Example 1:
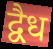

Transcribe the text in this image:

द्वैध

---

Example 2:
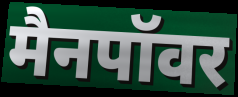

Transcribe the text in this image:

मैनपॉवर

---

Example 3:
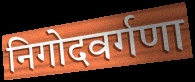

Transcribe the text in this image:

निगोदवर्गणा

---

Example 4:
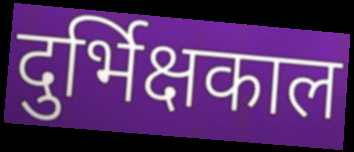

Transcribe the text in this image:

दुर्भिक्षकाल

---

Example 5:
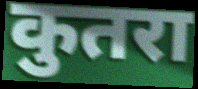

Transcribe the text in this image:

कुतरा